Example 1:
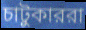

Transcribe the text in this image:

চাটুকাররা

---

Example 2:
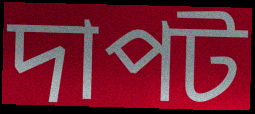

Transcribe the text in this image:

দাপট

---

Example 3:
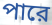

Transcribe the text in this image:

পারে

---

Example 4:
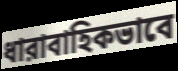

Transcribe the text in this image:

ধারাবাহিকভাবে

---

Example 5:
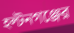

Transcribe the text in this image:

হল্টনগঞ্জের